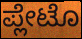
ಪ್ಲೇಟೊ